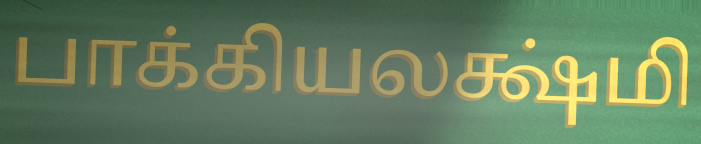
பாக்கியலக்ஷ்மி